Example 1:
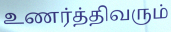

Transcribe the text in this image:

உணர்த்திவரும்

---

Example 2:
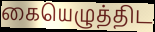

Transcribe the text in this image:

கையெழுத்திட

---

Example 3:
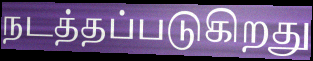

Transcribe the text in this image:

நடத்தப்படுகிறது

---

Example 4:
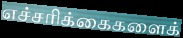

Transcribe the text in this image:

எச்சரிக்கைகளைக்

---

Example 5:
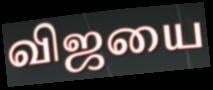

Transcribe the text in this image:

விஜயை